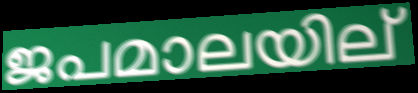
ജപമാലയില്